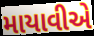
માયાવીએ